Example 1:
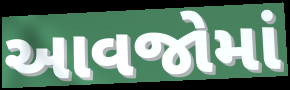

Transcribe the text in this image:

આવજોમાં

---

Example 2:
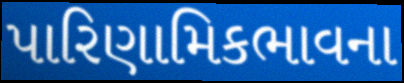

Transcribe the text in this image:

પારિણામિકભાવના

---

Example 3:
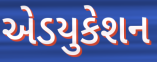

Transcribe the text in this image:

એડયુકેશન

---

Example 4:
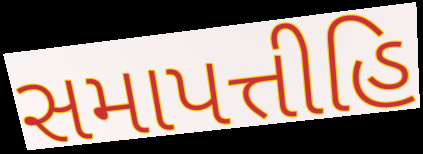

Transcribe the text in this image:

સમાપત્તીહિ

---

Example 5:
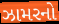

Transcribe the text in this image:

ઝામરનો